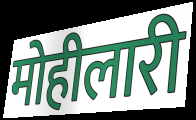
मोहीलारी